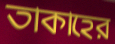
তাকাহের